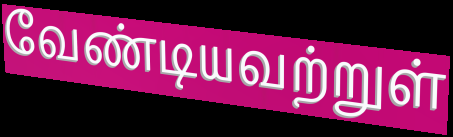
வேண்டியவற்றுள்